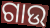
ଗାଉ